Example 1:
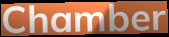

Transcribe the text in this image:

Chamber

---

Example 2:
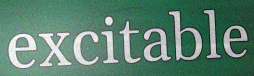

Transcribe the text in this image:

excitable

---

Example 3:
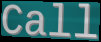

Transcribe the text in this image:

Call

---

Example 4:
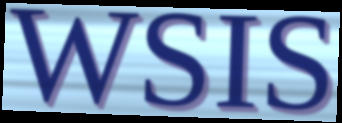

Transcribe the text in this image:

WSIS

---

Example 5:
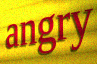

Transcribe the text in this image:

angry